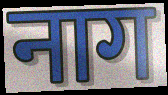
नाग